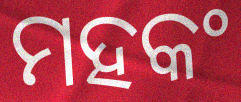
ମହକଂ